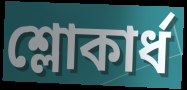
শ্লোকার্ধ